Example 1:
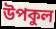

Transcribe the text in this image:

উপকুল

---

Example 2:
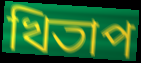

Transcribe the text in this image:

খিতাপ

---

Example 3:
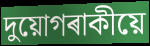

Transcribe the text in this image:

দুয়োগৰাকীয়ে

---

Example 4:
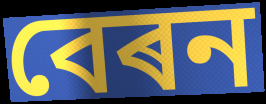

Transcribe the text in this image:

বেৰন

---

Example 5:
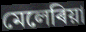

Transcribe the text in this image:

মেলেৰিয়া